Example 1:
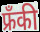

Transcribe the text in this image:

फ्रँकी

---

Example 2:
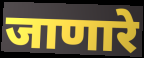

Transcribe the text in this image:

जाणारे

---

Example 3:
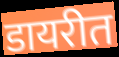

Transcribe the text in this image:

डायरीत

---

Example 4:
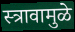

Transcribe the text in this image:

स्त्रावामुळे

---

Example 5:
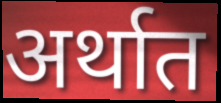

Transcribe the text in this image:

अर्थात